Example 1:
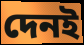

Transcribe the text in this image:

দেনই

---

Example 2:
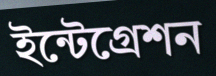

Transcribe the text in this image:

ইন্টেগ্রেশন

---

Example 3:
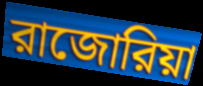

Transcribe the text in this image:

রাজোরিয়া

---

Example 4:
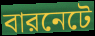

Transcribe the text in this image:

বারনেটে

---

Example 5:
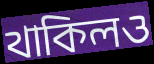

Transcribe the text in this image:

থাকিলও